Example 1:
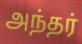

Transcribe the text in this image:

அந்தர்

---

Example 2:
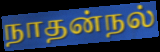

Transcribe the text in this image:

நாதன்நல்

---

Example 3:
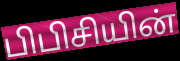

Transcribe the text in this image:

பிபிசியின்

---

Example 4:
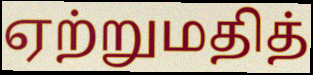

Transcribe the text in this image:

ஏற்றுமதித்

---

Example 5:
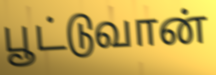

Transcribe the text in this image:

பூட்டுவான்